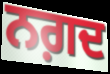
ਨਗ਼ਦ